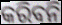
କରିବନି